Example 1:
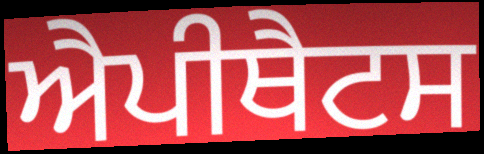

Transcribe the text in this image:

ਐਪੀਥੈਟਸ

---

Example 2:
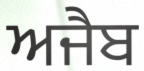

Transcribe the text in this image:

ਅਜੈਬ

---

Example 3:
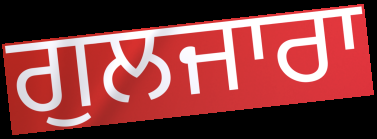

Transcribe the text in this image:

ਗੁਲਜਾਰਾ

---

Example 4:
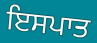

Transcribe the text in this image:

ਇਸਪਾਤ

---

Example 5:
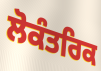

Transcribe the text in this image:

ਲੋਕੰਤਰਿਕ